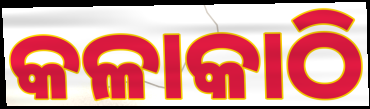
କଳାକାଠି